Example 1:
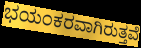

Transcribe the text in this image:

ಭಯಂಕರವಾಗಿರುತ್ತವೆ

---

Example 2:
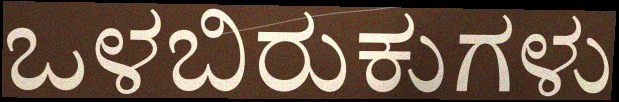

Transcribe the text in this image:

ಒಳಬಿರುಕುಗಳು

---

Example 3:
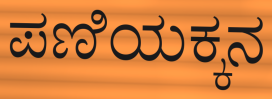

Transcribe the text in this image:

ಪಣಿಯಕ್ಕನ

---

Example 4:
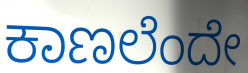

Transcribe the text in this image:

ಕಾಣಲೆಂದೇ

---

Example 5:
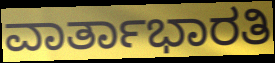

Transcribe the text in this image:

ವಾರ್ತಾಭಾರತಿ